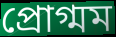
প্রোগ্মম